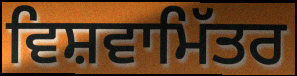
ਵਿਸ਼ਵਾਮਿੱਤਰ